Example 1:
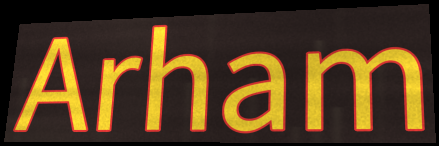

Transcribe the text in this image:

Arham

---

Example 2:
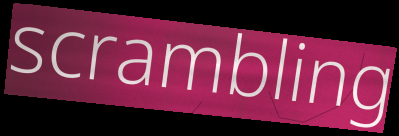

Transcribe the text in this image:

scrambling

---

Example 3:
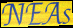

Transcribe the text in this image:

NEAs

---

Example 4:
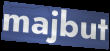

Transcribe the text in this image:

majbut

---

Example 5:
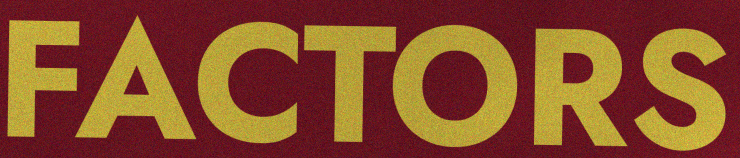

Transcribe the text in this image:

FACTORS